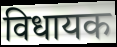
विधायक